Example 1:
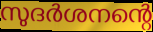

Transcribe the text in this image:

സുദർശനന്റെ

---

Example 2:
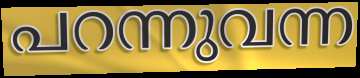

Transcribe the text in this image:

പറന്നുവന്ന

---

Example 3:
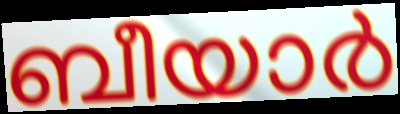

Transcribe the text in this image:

ബീയാർ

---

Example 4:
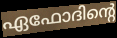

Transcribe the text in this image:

ഏഫോദിന്റെ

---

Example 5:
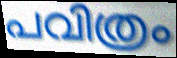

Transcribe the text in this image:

പവിത്രം